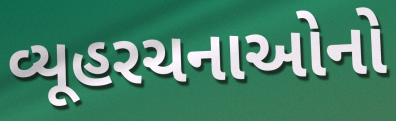
વ્યૂહરચનાઓનો